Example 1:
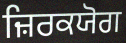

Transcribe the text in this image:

ਜ਼ਿਰਕਯੋਗ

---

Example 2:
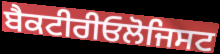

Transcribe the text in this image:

ਬੈਕਟੀਰੀਓਲੋਜਿਸਟ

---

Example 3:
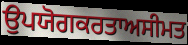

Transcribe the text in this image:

ਉਪਯੋਗਕਰਤਾਅਸੀਮਤ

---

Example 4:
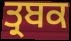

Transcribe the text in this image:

ਤ੍ਰਬਕ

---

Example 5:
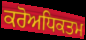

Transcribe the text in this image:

ਕਰੋਅਧਿਕਤਮ